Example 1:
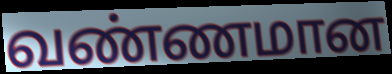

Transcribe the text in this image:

வண்ணமான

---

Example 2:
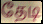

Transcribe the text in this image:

தேடி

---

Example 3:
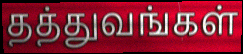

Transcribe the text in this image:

தத்துவங்கள்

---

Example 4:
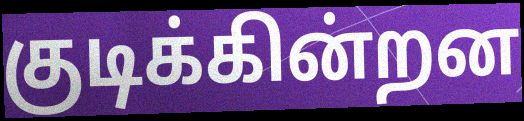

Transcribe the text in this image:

குடிக்கின்றன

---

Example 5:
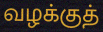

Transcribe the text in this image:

வழக்குத்